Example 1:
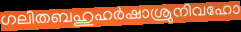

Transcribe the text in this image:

ഗലിതബഹുഹർഷാശ്രുനിവഹോ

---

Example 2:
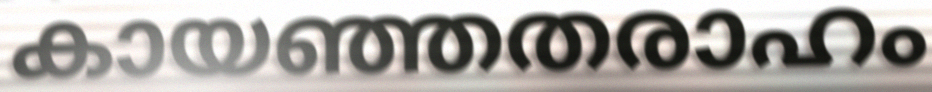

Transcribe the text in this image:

കായഞ്ഞതരാഹം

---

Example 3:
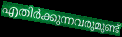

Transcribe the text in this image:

എതിർക്കുന്നവരുമുണ്ട്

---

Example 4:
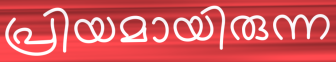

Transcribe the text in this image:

പ്രിയമായിരുന്ന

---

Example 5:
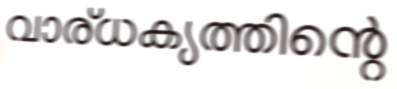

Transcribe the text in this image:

വാര്ധക്യത്തിന്റെ